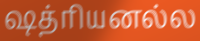
ஷத்ரியனல்ல